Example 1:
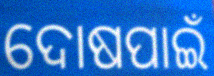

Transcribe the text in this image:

ଦୋଷପାଇଁ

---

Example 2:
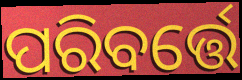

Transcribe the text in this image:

ପରିବର୍ତ୍ତେ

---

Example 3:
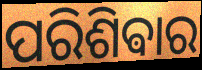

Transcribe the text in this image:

ପରିଶିଵାର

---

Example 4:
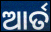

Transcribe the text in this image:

ଆର୍ତ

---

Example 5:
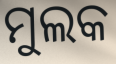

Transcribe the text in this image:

ମୁଲକ